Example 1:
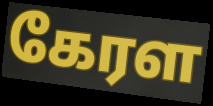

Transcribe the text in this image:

கேரள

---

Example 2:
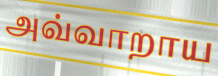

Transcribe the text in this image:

அவ்வாறாய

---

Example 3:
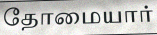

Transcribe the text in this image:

தோமையார்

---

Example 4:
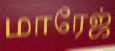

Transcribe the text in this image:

மாரேஜ்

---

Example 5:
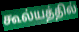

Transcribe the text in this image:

கூல்யத்தில்